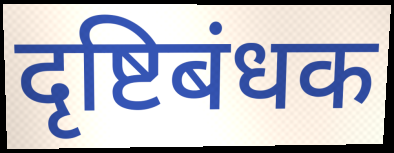
दृष्टिबंधक